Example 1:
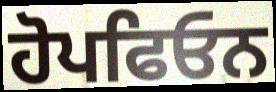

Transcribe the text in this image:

ਹੋਪਫਿਓਨ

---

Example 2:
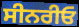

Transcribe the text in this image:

ਸੀਨਰੀਓ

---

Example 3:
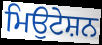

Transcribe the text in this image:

ਮਿਉਟੇਸ਼ਨ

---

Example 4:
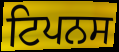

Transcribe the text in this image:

ਟਿਪਨਸ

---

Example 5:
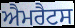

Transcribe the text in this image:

ਐਮਰੈਟਸ